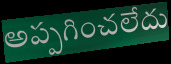
అప్పగించలేదు